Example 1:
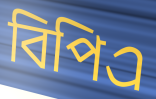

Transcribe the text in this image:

বিপিএ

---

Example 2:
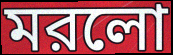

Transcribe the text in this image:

মরলো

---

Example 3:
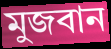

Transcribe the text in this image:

মুজবান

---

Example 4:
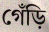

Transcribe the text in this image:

গেঁড়ি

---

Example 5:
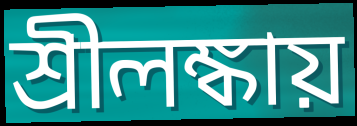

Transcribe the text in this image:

শ্রীলঙ্কায়